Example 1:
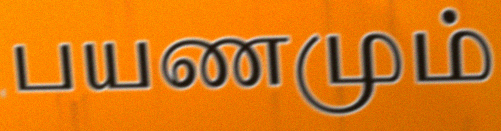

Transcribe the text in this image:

பயணமும்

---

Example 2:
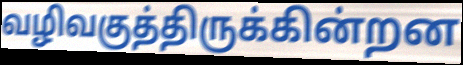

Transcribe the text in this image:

வழிவகுத்திருக்கின்றன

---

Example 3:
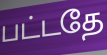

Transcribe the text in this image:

பட்டதே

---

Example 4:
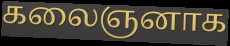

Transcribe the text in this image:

கலைஞனாக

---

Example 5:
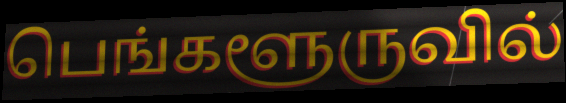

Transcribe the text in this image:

பெங்களூருவில்